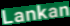
Lankan